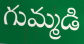
గుమ్మడి